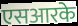
एसआरके